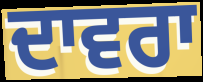
ਦਾਵਰਾ